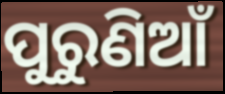
ପୁରୁଣିଆଁ